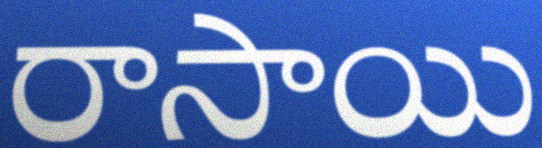
రాసాయి